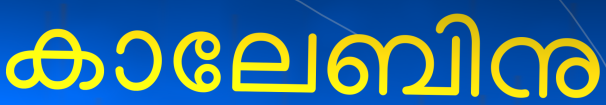
കാലേബിനു